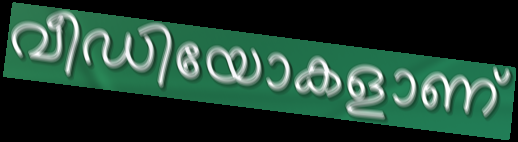
വീഡിയോകളാണ്